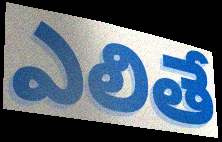
ఎలితే